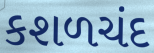
કશળચંદ